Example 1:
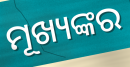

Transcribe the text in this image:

ମୂଖ୍ୟଙ୍କର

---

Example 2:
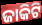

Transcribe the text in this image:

ଜାକିଟି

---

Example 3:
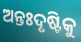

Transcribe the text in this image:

ଅନ୍ତଃଦୃଷ୍ଟିକୁ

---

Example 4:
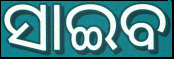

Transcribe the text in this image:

ସାଇବ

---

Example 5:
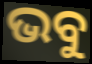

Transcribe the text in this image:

ଭବୁ